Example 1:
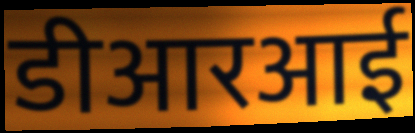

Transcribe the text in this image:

डीआरआई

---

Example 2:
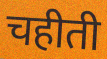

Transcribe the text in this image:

चहीती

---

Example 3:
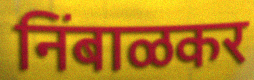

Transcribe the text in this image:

निंबाळकर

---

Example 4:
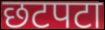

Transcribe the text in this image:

छटपटा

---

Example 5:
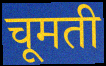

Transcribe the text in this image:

चूमती